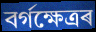
বৰ্গক্ষেত্ৰৰ